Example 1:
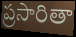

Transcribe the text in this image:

ప్రసారితా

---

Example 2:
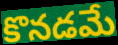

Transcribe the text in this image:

కొనడమే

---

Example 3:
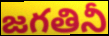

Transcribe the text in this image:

జగతినీ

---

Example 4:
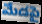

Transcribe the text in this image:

మేడపై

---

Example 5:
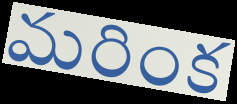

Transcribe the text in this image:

మరింక